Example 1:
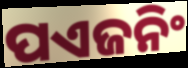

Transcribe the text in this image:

ପଏଜନିଂ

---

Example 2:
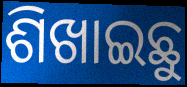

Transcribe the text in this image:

ଶିଖାଇଛୁ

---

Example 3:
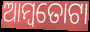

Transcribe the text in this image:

ଆମ୍ବତୋଟା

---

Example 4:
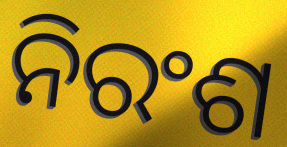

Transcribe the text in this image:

ନିରଂଶ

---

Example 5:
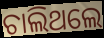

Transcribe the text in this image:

ଚାଲିଥଲେ